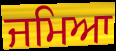
ਜਮਿਆ